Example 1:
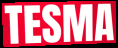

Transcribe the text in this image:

TESMA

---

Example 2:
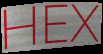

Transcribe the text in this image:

HEX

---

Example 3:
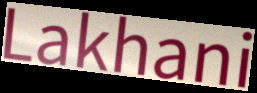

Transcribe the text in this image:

Lakhani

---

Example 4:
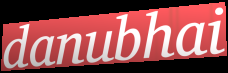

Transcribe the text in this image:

danubhai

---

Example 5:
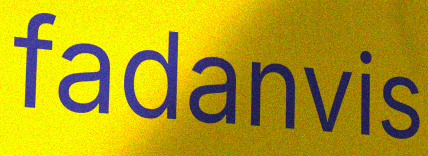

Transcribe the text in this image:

fadanvis